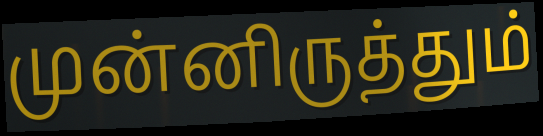
முன்னிருத்தும்